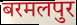
बरमलपुर